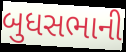
બુધસભાની